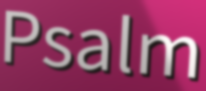
Psalm